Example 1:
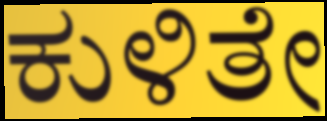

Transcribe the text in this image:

ಕುಳಿತೇ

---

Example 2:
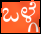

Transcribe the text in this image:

ಒಳ್ಗೆ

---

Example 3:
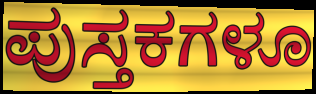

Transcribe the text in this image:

ಪುಸ್ತಕಗಳೂ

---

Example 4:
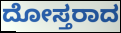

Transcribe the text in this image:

ದೋಸ್ತರಾದ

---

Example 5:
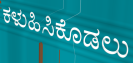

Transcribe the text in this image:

ಕಳುಹಿಸಿಕೊಡಲು